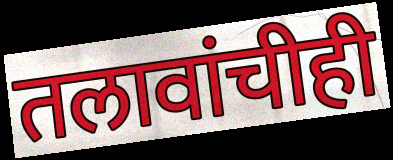
तलावांचीही